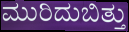
ಮುರಿದುಬಿತ್ತು